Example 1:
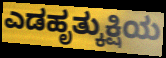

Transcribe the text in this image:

ಎಡಹೃತ್ಕುಕ್ಷಿಯ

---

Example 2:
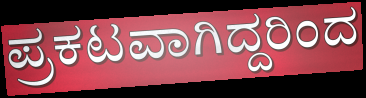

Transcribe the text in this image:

ಪ್ರಕಟವಾಗಿದ್ದರಿಂದ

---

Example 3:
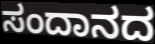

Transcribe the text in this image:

ಸಂದಾನದ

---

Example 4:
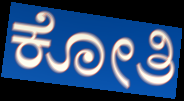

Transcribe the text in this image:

ಕೋತಿ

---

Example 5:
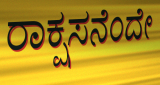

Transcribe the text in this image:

ರಾಕ್ಷಸನೆಂದೇ